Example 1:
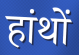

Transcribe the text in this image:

हांथों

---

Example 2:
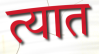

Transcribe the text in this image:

त्यात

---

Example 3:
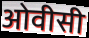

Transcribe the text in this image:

ओवीसी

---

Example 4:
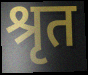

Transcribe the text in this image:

श्रृत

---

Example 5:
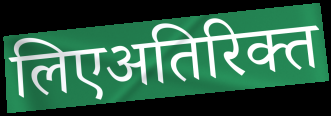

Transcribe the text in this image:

लिएअतिरिक्त